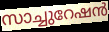
സാച്ചുറേഷൻ